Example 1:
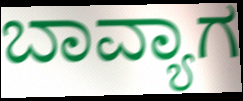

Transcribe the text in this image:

ಬಾವ್ಯಾಗ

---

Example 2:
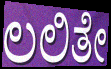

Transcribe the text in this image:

ಲಲಿತೇ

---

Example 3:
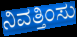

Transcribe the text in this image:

ನಿವತ್ತಿಂಸು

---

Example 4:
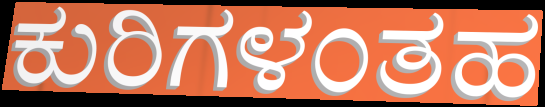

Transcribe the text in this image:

ಕುರಿಗಳಂತಹ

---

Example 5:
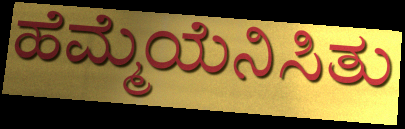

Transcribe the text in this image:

ಹೆಮ್ಮೆಯೆನಿಸಿತು